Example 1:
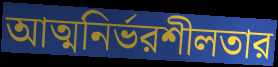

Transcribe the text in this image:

আত্মনির্ভরশীলতার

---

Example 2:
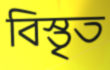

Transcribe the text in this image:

বিস্তৃত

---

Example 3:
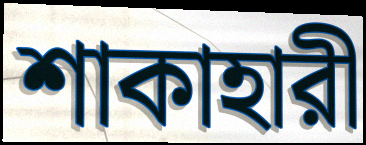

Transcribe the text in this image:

শাকাহারী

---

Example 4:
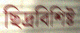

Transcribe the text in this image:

ছিদ্রবিশিষ্ট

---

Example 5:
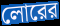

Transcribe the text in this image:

লোরের